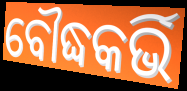
ବୌଦ୍ଧକର୍ଭି